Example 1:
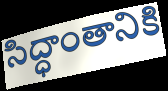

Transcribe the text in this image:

సిద్ధాంతానికి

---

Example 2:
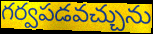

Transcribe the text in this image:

గర్వపడవచ్చును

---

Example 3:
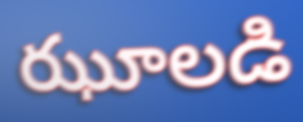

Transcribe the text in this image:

ఝూలడి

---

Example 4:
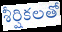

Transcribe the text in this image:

శీర్షికలతో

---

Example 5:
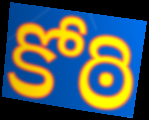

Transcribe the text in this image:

కోఠి